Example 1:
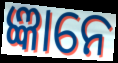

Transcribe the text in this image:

ଜ୍ଞାନେ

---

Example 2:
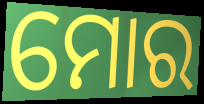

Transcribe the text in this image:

ମୋର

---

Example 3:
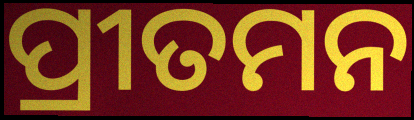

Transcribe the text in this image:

ପ୍ରୀତମନ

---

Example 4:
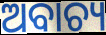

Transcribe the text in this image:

ଅବାଚ୍ୟ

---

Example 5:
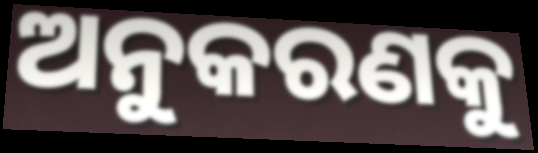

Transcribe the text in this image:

ଅନୁକରଣକୁ